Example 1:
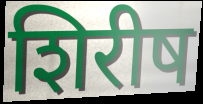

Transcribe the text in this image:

शिरीष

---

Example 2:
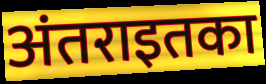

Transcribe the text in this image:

अंतराइतका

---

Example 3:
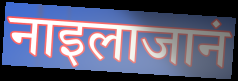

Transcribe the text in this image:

नाइलाजानं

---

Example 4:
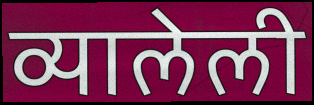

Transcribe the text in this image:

व्यालेली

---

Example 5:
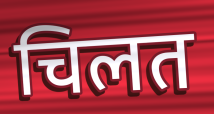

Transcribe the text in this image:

चिलत